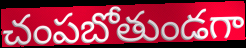
చంపబోతుండగా